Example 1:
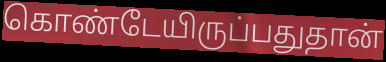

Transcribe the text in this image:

கொண்டேயிருப்பதுதான்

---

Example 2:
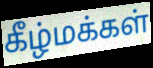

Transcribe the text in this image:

கீழ்மக்கள்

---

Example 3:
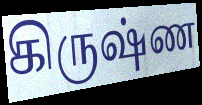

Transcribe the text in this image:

கிருஷ்ண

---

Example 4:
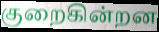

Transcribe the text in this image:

குறைகின்றன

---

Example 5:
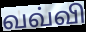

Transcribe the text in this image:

வவ்வி